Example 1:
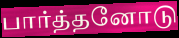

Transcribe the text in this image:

பார்த்தனோடு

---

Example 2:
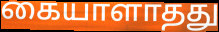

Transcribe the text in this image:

கையாளாதது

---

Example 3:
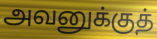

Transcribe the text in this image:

அவனுக்குத்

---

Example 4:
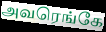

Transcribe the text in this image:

அவரெங்கே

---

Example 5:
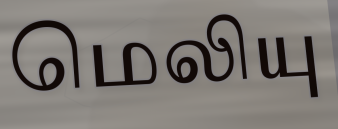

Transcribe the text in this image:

மெலியு